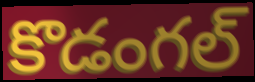
కొడంగల్